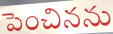
పెంచినను